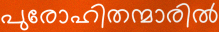
പുരോഹിതന്മാരിൽ